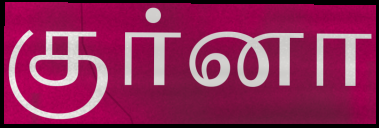
குர்னா